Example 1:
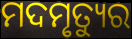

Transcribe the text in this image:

ମଦମୃତ୍ୟୁର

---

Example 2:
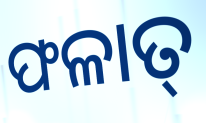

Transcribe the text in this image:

ଫଳାତ୍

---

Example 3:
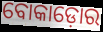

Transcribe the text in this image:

ବୋକାଡ଼ୋର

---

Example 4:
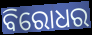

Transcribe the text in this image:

ବିରୋଧର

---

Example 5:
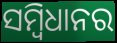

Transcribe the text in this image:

ସମ୍ବିଧାନର